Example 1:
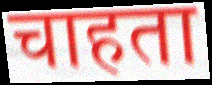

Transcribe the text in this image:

चाहता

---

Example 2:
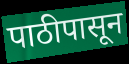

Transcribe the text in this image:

पाठीपासून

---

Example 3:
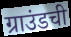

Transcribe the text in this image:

ग्राउंडची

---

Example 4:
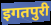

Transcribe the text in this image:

इगतपुरी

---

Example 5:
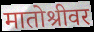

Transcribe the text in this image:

मातोश्रीवर